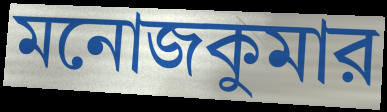
মনোজকুমার